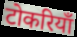
टोकरियाँ